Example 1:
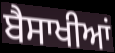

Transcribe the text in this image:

ਬੈਸਾਖੀਆਂ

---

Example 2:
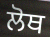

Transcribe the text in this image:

ਲੋਥ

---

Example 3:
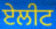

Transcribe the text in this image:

ਏਲੀਟ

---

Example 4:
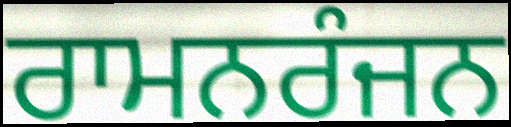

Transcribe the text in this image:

ਰਾਮਨਰੰਜਨ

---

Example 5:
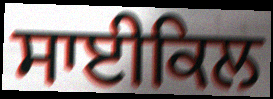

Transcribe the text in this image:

ਸਾਈਕਿਲ